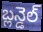
బ్లన్డెల్